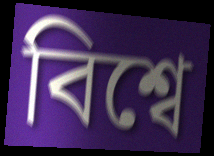
বিশ্বে